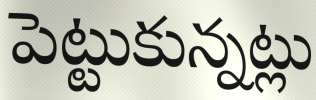
పెట్టుకున్నట్లు